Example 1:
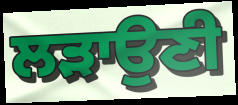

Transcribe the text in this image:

ਲੜਾਉਣੀ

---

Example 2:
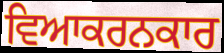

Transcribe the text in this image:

ਵਿਆਕਰਨਕਾਰ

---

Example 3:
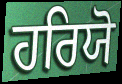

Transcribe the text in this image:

ਹਰਿਯੋ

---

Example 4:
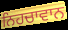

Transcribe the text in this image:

ਨਿਹਚਾਵਾਨ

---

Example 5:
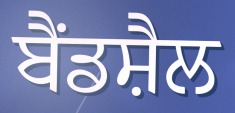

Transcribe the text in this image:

ਬੈਂਡਸ਼ੈਲ